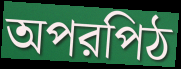
অপরপিঠ